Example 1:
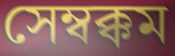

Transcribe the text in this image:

সেম্বক্কম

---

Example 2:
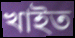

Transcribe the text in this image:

খাইত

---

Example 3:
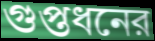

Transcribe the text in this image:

গুপ্তধনের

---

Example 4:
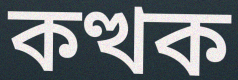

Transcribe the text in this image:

কত্থক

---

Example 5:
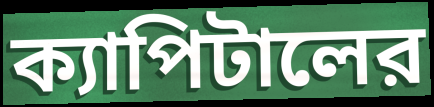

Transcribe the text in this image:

ক্যাপিটালের